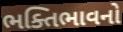
ભક્તિભાવનો